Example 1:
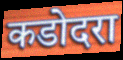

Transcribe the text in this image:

कडोदरा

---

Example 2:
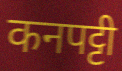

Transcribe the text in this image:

कनपट्टी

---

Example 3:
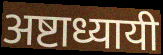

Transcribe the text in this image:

अष्टाध्यायी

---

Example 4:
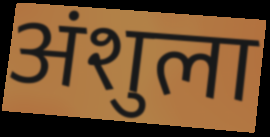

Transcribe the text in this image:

अंशुला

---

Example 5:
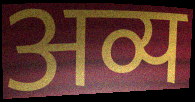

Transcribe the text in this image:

अव्य